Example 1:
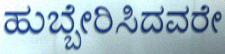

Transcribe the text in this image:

ಹುಬ್ಬೇರಿಸಿದವರೇ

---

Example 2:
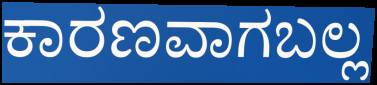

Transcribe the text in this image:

ಕಾರಣವಾಗಬಲ್ಲ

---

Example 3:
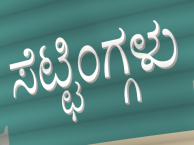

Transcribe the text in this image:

ಸೆಟ್ಟಿಂಗ್ಗಳು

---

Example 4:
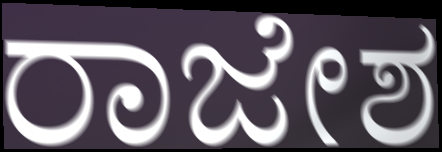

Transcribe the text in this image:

ರಾಜೇಶ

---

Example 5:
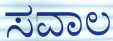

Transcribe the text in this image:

ಸವಾಲ